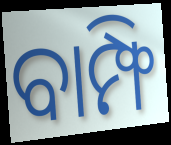
ବାମ୍ଫି